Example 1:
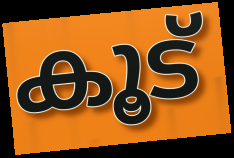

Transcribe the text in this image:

കൂട്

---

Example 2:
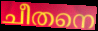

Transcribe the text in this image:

ചീതനെ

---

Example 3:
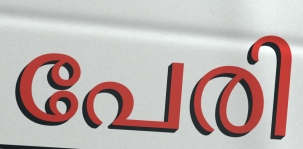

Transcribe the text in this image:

പേരി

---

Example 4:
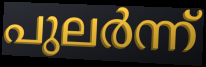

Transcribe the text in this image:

പുലർന്ന്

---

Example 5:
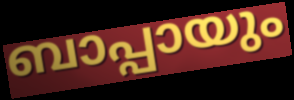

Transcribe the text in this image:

ബാപ്പായും